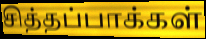
சித்தப்பாக்கள்